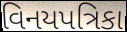
વિનયપત્રિકા